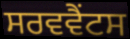
ਸਰਵਵੈਂਟਸ